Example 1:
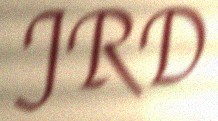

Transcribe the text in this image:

JRD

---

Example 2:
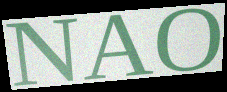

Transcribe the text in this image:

NAO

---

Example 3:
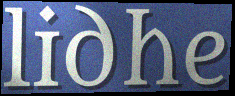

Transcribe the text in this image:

lidhe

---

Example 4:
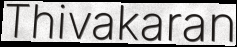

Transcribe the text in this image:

Thivakaran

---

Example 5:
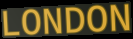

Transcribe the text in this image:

LONDON